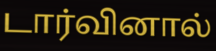
டார்வினால்